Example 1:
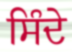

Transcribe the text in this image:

ਸਿੰਦੇ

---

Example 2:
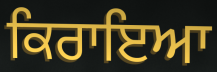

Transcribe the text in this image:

ਕਿਰਾਇਆ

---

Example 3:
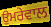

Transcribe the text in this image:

ਉਮਰੇਵਾਲ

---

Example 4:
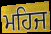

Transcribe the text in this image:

ਮਹਿਜ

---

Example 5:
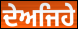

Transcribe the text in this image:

ਦੇਅਜਿਹੇ